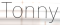
Tonny